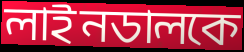
লাইনডালকে